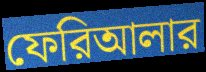
ফেরিআলার